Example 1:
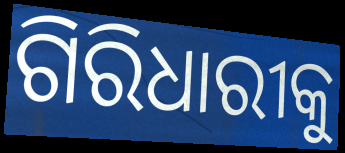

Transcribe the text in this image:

ଗିରିଧାରୀକୁ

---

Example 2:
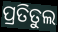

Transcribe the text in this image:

ପ୍ରତିତୁଲ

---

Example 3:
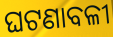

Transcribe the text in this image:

ଘଟଣାବଳୀ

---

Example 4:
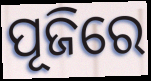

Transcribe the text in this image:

ପୂଜିରେ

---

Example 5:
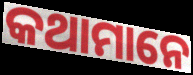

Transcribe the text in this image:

କଥାମାନେ